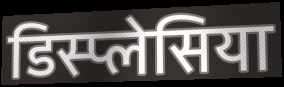
डिस्प्लेसिया